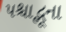
પશ્ચાદ્ભૂના